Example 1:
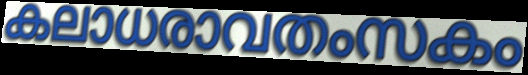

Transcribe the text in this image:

കലാധരാവതംസകം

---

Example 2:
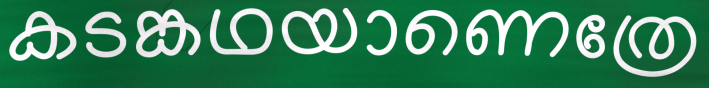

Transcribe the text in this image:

കടങ്കഥയാണെത്രേ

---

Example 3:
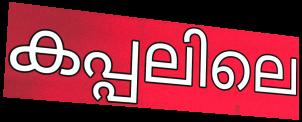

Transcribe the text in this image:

കപ്പലിലെ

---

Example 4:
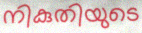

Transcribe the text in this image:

നികുതിയുടെ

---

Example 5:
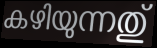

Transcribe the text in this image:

കഴിയുന്നതു്